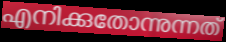
എനിക്കുതോന്നുന്നത്